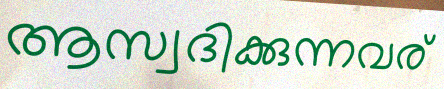
ആസ്വദിക്കുന്നവര്